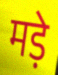
मड़े